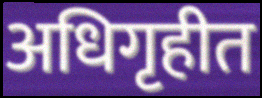
अधिगृहीत